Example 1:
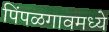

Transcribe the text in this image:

पिंपळगावमध्ये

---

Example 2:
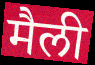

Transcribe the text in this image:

मैली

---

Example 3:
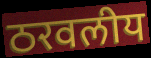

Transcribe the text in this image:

ठरवलीय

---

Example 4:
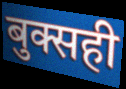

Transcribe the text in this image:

बुक्सही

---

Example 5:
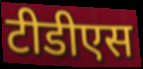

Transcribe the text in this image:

टीडीएस